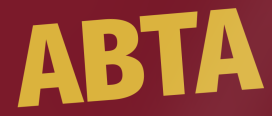
ABTA